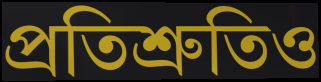
প্ৰতিশ্ৰুতিও